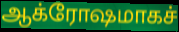
ஆக்ரோஷமாகச்